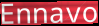
Ennavo